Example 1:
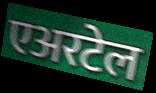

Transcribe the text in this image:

एअरटेल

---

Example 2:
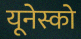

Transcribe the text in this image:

यूनेस्को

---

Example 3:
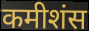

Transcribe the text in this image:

कमीशंस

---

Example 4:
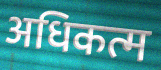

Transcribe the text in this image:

अधिकत्म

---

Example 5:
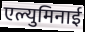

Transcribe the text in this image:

एल्युमिनाई